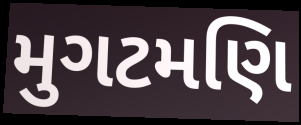
મુગટમણિ